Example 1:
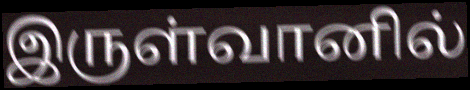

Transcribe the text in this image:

இருள்வானில்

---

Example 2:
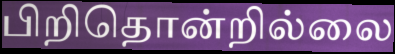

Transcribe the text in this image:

பிறிதொன்றில்லை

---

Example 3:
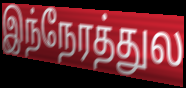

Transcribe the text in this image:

இந்நேரத்துல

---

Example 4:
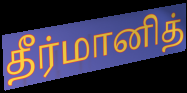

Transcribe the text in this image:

தீர்மானித்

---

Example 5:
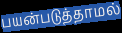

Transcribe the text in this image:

பயன்படுத்தாமல்